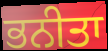
ਭਨੀਤਾ